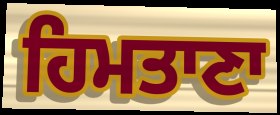
ਹਿਮਤਾਣਾ